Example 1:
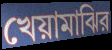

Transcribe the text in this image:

খেয়ামাঝির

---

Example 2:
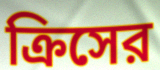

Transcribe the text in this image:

ক্রিসের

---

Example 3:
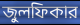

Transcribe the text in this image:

জুলফিকার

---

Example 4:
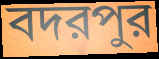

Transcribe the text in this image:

বদরপুর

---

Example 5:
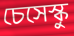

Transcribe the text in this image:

চেসেস্কু